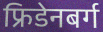
फ्रिडेनबर्ग